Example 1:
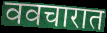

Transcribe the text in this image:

ववचारात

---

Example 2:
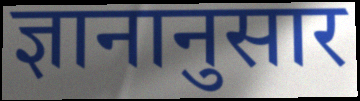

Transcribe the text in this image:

ज्ञानानुसार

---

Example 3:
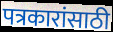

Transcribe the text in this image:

पत्रकारांसाठी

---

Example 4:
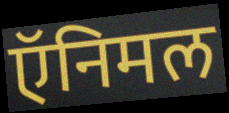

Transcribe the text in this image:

ऍनिमल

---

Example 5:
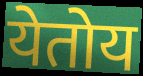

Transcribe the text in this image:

येतोय